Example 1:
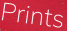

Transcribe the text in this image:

Prints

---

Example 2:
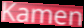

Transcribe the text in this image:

Kamen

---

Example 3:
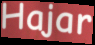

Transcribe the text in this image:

Hajar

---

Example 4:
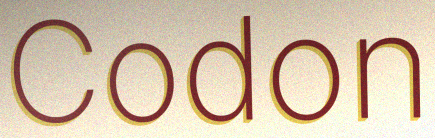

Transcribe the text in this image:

Codon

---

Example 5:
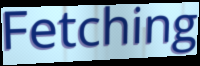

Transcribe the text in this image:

Fetching